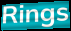
Rings